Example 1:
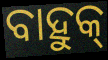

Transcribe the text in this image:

ବାହୁକ୍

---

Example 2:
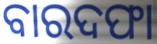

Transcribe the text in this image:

ବାରଦଫା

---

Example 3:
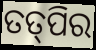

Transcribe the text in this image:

ତତ୍‌ପିର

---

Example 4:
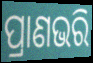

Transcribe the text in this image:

ପ୍ରାଣଭରି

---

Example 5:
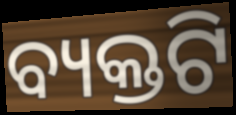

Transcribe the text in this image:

ବ୍ୟକ୍ତଟି